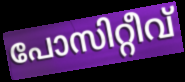
പോസിറ്റീവ്